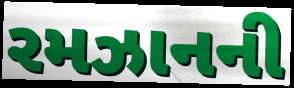
રમઝાનની